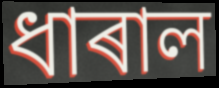
ধাৰাল